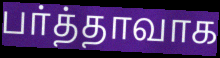
பர்த்தாவாக